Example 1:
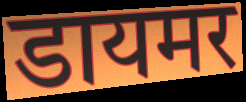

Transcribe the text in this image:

डायमर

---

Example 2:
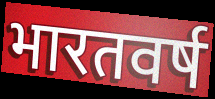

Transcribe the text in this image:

भारतवर्ष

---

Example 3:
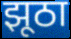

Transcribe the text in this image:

झूठा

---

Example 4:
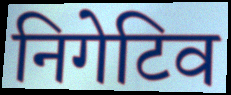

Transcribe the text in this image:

निगेटिव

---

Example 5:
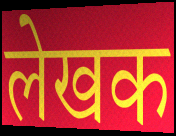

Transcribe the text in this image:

लेखक